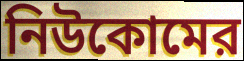
নিউকোমের